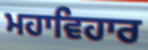
ਮਹਾਵਿਹਾਰ